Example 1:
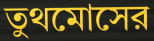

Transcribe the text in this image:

তুথমোসের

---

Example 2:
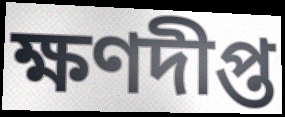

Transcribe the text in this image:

ক্ষণদীপ্ত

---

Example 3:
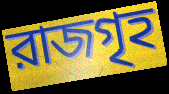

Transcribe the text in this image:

রাজগৃহ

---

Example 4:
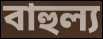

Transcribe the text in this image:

বাহুল্য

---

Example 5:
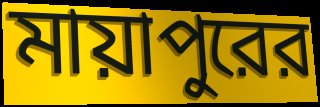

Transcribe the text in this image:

মায়াপুরের